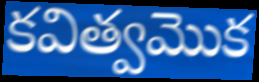
కవిత్వమొక